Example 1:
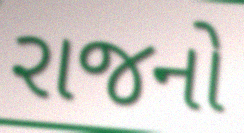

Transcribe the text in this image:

રાજનો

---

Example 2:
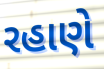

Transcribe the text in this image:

રહાણે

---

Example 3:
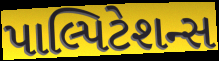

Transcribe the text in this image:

પાલ્પિટેશન્સ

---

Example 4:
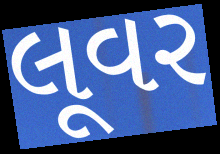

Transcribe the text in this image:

લૂવર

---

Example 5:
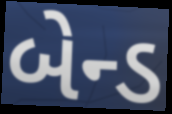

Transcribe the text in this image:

બેન્ડ